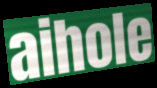
aihole